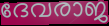
ദേവരാജ